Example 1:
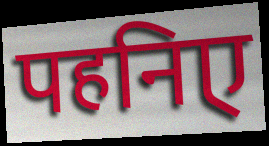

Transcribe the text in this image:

पहनिए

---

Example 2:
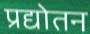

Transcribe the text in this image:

प्रद्योतन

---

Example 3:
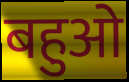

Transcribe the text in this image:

बहुओ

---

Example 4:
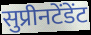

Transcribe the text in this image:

सुप्रीनटेंडेंट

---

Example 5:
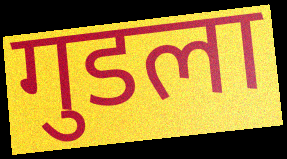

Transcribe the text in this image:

गुडला